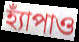
হ্যাঁপাও